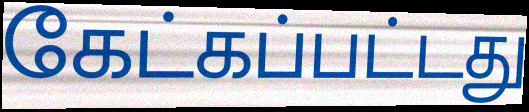
கேட்கப்பட்டது